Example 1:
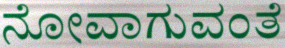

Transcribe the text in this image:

ನೋವಾಗುವಂತೆ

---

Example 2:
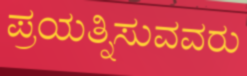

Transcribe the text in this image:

ಪ್ರಯತ್ನಿಸುವವರು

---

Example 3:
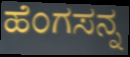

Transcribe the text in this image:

ಹೆಂಗಸನ್ನ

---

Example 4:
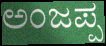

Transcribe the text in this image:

ಅಂಜಪ್ಪ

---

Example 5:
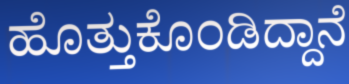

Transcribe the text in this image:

ಹೊತ್ತುಕೊಂಡಿದ್ದಾನೆ